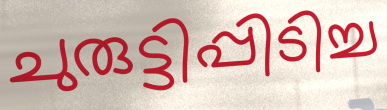
ചുരുട്ടിപ്പിടിച്ച